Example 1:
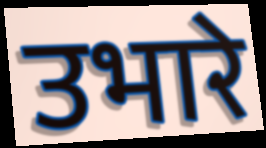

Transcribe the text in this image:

उभारे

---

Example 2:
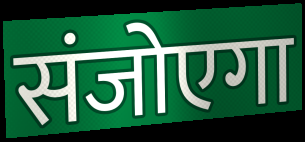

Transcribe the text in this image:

संजोएगा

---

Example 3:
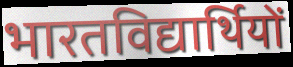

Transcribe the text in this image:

भारतविद्यार्थियों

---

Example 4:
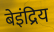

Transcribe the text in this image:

बेइंद्रिय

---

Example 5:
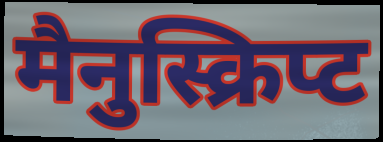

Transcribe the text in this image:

मैनुस्क्रिप्ट